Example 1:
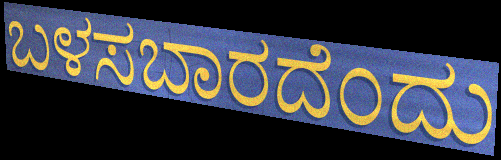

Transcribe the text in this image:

ಬಳಸಬಾರದೆಂದು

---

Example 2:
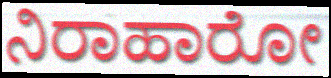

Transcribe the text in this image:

ನಿರಾಹಾರೋ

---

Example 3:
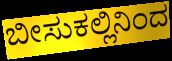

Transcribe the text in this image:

ಬೀಸುಕಲ್ಲಿನಿಂದ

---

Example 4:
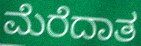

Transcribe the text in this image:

ಮೆರೆದಾತ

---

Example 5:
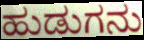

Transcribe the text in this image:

ಹುಡುಗನು